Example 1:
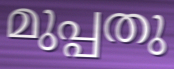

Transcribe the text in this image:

മുപ്പതു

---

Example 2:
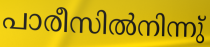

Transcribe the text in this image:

പാരീസിൽനിന്നു്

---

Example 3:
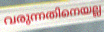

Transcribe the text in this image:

വരുന്നതിനെയല്ല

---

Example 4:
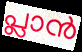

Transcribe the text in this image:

പ്ലാൻ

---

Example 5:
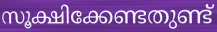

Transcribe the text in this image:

സൂക്ഷിക്കേണ്ടതുണ്ട്